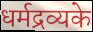
धर्मद्रव्यके